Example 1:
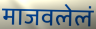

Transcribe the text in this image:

माजवलेलं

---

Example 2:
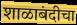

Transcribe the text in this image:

शाळाबंदीचा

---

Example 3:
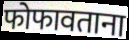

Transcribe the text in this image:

फोफावताना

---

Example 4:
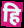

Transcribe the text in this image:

हि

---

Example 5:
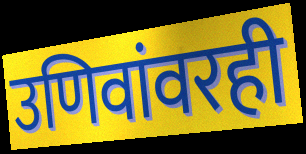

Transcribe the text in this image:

उणिवांवरही